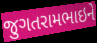
જુગતરામભાઇને